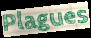
Plagues